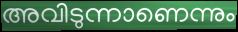
അവിടുന്നാണെന്നും